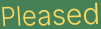
Pleased